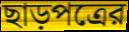
ছাড়পত্রের